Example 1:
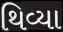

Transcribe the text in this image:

થિવ્યા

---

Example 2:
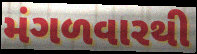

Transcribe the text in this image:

મંગળવારથી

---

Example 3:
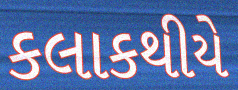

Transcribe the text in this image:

કલાકથીયે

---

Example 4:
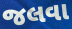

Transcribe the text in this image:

જલવા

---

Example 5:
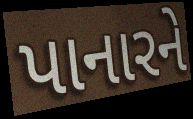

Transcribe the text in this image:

પાનારને